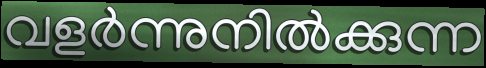
വളർന്നുനിൽക്കുന്ന